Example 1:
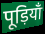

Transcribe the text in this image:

पूड़ियाँ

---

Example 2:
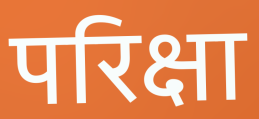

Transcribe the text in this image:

परिक्षा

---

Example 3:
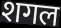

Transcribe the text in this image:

शगल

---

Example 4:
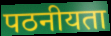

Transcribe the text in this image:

पठनीयता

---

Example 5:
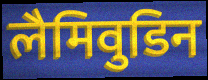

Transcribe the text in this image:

लैमिवुडिन